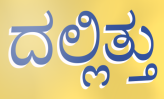
ದಲ್ಲಿತ್ತು